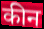
कीन